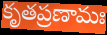
కృతప్రణామః